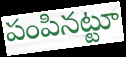
పంపినట్టూ